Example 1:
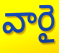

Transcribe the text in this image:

వారై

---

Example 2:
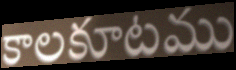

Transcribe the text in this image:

కాలకూటము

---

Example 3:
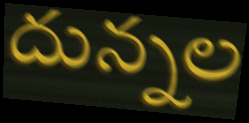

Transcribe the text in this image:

దున్నల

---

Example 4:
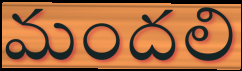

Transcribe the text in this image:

మందలి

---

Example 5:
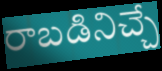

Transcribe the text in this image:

రాబడినిచ్చే